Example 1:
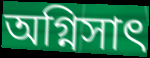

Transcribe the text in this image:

অগ্নিসাৎ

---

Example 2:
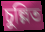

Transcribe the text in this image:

চুল্লিত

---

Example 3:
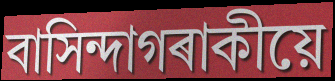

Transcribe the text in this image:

বাসিন্দাগৰাকীয়ে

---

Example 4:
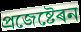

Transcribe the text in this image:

প্ৰজেষ্টেৰন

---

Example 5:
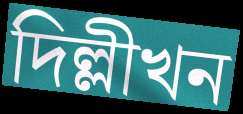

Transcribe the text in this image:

দিল্লীখন